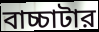
বাচ্চাটার